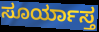
ಸೂರ್ಯಾಸ್ತ